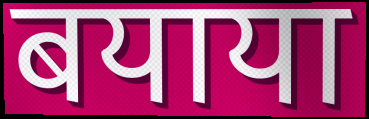
बयाया